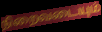
நிறைவடையும்